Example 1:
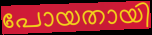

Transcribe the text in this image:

പോയതായി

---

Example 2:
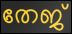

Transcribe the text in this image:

തേജ്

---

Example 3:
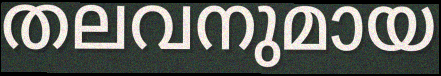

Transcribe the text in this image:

തലവനുമായ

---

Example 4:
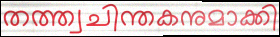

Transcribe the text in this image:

തത്ത്വചിന്തകനുമാക്കി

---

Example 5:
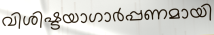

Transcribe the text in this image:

വിശിഷ്ടയാഗാർപ്പണമായി